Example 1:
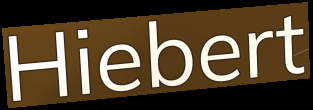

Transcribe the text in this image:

Hiebert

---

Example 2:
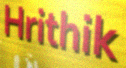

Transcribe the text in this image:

Hrithik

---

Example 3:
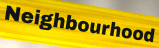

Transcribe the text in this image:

Neighbourhood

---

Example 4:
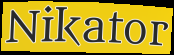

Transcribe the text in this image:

Nikator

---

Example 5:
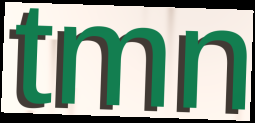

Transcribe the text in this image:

tmn